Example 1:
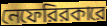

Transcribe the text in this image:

নেফেরিরকারে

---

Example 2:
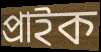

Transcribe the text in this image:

প্রাইক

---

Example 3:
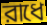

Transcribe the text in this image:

রাধে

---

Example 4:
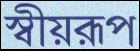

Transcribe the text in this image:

স্বীয়রূপ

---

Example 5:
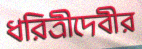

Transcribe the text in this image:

ধরিত্রীদেবীর